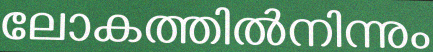
ലോകത്തിൽനിന്നും